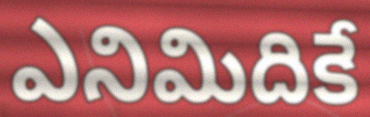
ఎనిమిదికే